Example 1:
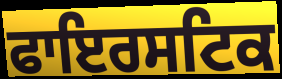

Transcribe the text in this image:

ਫਾਇਰਸਟਿਕ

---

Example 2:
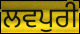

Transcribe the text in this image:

ਲਵਪੁਰੀ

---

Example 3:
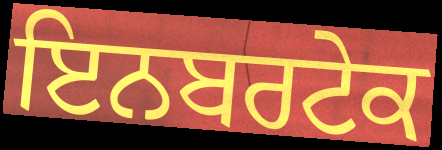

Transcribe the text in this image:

ਇਨਬਰਟੇਕ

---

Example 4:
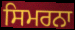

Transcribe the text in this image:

ਸਿਮਰਨਾ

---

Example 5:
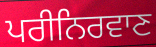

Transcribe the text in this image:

ਪਰੀਨਿਰਵਾਣ